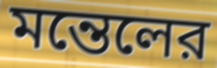
মন্তেলের